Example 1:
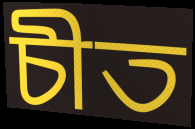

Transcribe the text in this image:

চীত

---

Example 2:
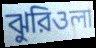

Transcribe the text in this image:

ঝুরিওলা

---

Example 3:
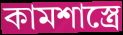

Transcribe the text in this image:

কামশাস্ত্রে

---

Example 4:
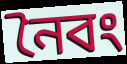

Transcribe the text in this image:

নৈবং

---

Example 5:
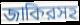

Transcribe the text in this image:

জাকিরসহ